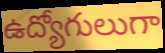
ఉద్యోగులుగా